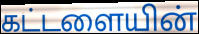
கட்டளையின்